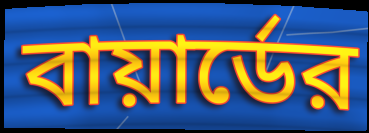
বায়ার্ডের